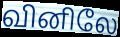
வினிலே